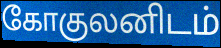
கோகுலனிடம்